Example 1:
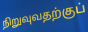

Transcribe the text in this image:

நிறுவுவதற்குப்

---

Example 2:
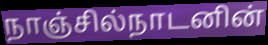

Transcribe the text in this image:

நாஞ்சில்நாடனின்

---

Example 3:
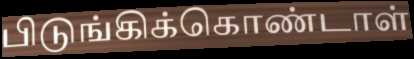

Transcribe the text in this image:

பிடுங்கிக்கொண்டாள்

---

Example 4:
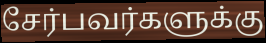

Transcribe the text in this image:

சேர்பவர்களுக்கு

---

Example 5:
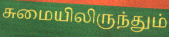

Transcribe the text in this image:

சுமையிலிருந்தும்